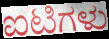
ಐಟಿಗಳು